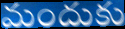
మందుకు